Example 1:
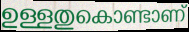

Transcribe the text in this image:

ഉള്ളതുകൊണ്ടാണ്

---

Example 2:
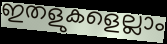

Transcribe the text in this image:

ഇതളുകളെല്ലാം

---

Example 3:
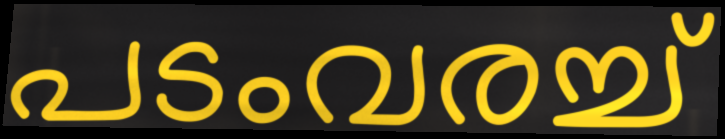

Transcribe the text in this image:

പടംവരച്ച്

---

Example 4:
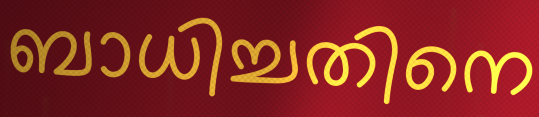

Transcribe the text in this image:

ബാധിച്ചതിനെ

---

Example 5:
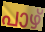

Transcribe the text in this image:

പാഴ്